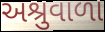
અશ્રુવાળા